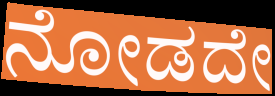
ನೋಡದೇ